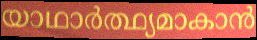
യാഥാർത്ഥ്യമാകാൻ